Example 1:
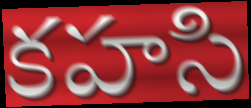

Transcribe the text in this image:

కహసి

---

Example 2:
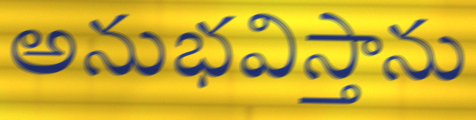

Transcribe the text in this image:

అనుభవిస్తాను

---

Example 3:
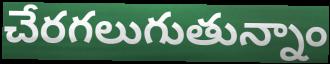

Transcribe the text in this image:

చేరగలుగుతున్నాం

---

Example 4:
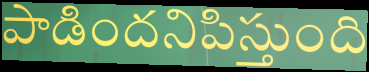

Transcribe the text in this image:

పాడిందనిపిస్తుంది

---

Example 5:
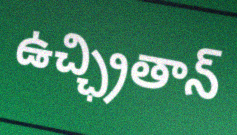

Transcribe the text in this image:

ఉచ్ఛ్రితాన్